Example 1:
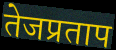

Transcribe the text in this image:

तेजप्रताप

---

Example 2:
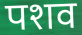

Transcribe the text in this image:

पशव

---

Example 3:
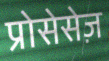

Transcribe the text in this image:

प्रोसेसेज़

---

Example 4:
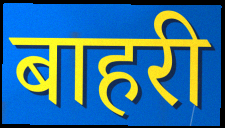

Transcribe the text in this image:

बाहरी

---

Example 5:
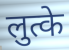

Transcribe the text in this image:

लुत्के